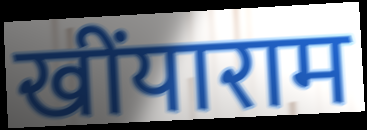
खींयाराम